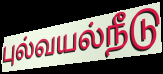
புல்வயல்நீடு